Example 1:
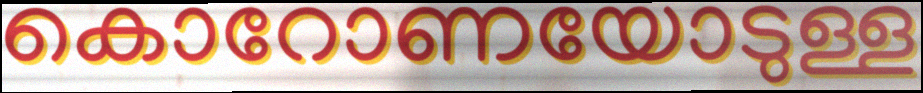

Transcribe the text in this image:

കൊറോണയോടുള്ള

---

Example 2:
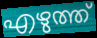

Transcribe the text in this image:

എഴുത്ത്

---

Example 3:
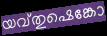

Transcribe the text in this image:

യവ്തുഷെങ്കോ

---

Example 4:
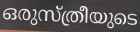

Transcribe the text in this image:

ഒരുസ്ത്രീയുടെ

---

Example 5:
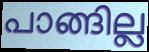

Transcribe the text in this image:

പാങ്ങില്ല